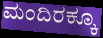
ಮಂದಿರಕ್ಕೂ